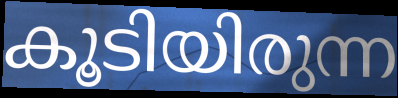
കൂടിയിരുന്ന